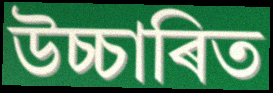
উচ্চাৰিত